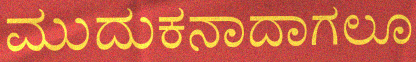
ಮುದುಕನಾದಾಗಲೂ